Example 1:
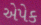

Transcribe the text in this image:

એપેક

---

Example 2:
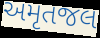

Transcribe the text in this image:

અમૃતજલ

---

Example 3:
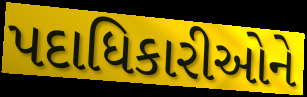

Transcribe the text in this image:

પદાધિકારીઓને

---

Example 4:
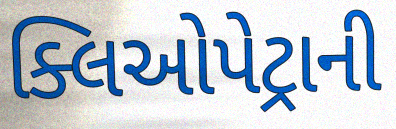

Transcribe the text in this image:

ક્લિઓપેટ્રાની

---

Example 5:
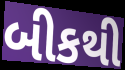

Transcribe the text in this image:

બીકથી